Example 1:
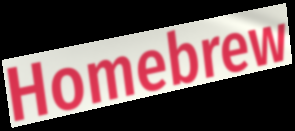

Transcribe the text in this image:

Homebrew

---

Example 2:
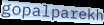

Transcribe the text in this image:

gopalparekh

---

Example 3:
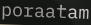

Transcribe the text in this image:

poraatam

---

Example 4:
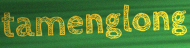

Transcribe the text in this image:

tamenglong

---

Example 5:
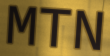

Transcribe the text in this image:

MTN